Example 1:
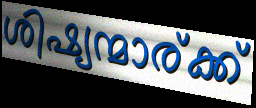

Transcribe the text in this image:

ശിഷ്യന്മാര്ക്ക്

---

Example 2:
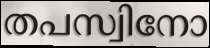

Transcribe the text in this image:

തപസ്വിനോ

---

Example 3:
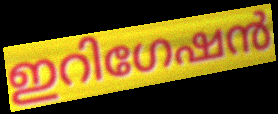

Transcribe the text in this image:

ഇറിഗേഷൻ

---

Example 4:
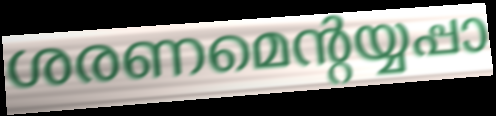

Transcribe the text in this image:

ശരണമെന്റയ്യപ്പാ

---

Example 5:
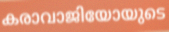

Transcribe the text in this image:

കരാവാജിയോയുടെ